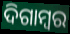
ଦିଗାମ୍ଵର